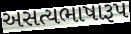
અસત્યભાષારૂપ